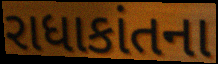
રાધાકાંતના